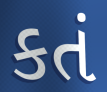
કતં